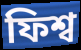
ফিশ্ব